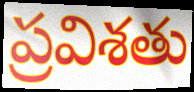
ప్రవిశతు